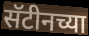
सॅटीनच्या